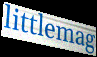
littlemag